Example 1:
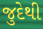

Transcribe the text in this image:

જુદેથી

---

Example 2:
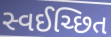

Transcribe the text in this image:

સ્વઈચ્છિત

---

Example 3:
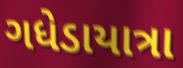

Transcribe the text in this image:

ગધેડાયાત્રા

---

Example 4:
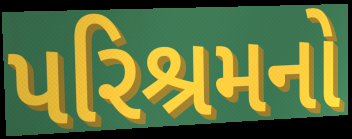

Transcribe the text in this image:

પરિશ્રમનો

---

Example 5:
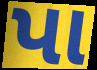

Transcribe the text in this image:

પા